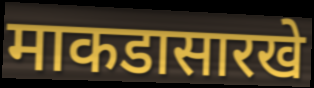
माकडासारखे